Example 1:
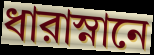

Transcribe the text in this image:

ধারাস্নানে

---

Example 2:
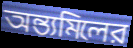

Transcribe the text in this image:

অন্ত্যমিলের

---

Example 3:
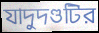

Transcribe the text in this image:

যাদুদণ্ডটির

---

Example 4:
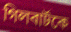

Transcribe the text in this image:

গিলবার্টকে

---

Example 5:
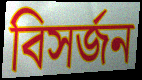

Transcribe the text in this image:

বিসর্জন